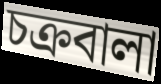
চক্রবালা